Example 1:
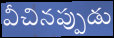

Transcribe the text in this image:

వీచినప్పుడు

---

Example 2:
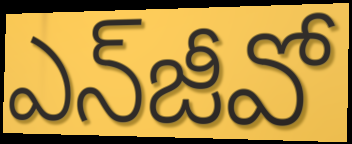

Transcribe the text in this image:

ఎన్‌జీవో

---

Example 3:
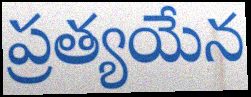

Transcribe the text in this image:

ప్రత్యయేన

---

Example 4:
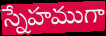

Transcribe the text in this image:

స్నేహముగా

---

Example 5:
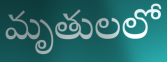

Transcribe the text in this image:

మృతులలో